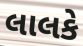
લાલકે